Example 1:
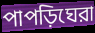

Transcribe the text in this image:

পাপড়িঘেরা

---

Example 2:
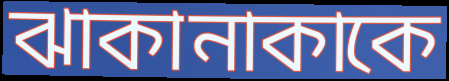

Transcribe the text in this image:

ঝাকানাকাকে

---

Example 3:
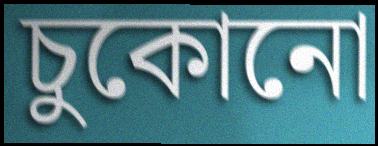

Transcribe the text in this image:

চুকোনো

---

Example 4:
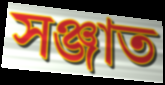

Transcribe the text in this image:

সঞ্জাত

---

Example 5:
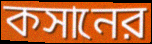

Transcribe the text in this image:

কসানের